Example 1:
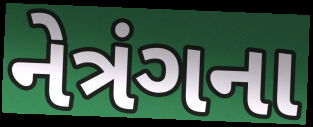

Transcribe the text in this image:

નેત્રંગના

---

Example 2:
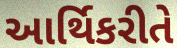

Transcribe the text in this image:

આર્થિકરીતે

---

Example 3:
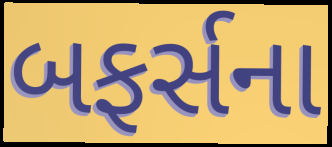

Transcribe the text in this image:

બફર્સના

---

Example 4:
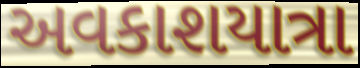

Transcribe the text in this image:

અવકાશયાત્રા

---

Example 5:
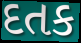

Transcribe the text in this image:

દતક